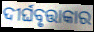
ଦୀର୍ଘବୃତ୍ତାକାର